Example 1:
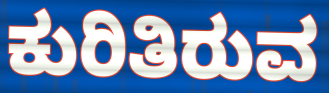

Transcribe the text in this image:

ಕುರಿತಿರುವ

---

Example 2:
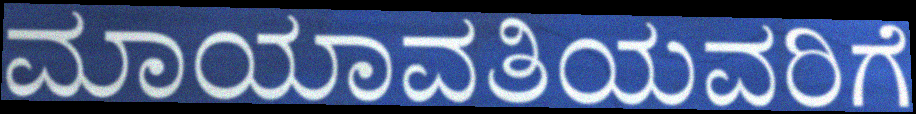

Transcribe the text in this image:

ಮಾಯಾವತಿಯವರಿಗೆ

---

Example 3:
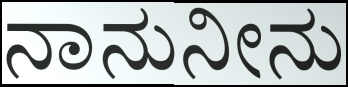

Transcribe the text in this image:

ನಾನುನೀನು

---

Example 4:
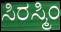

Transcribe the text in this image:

ಸಿರಸ್ಮಿಂ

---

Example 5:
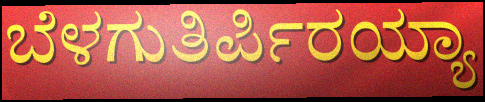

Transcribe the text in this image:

ಬೆಳಗುತಿರ್ಪಿರಯ್ಯಾ